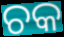
ଚକ